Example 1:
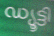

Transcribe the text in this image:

ഡ്യൂട്ടി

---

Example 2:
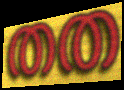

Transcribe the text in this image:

തത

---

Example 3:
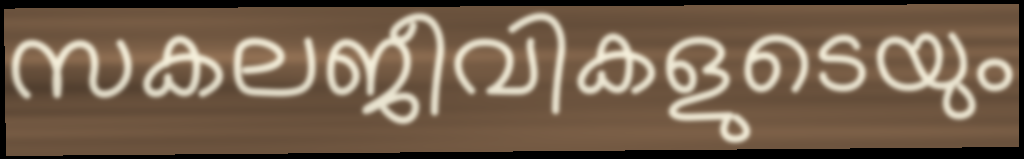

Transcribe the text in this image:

സകലജീവികളുടെയും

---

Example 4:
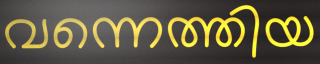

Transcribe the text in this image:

വന്നെത്തിയ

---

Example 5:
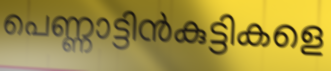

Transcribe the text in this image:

പെണ്ണാട്ടിൻകുട്ടികളെ